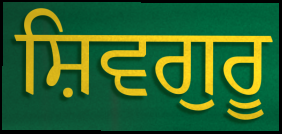
ਸ਼ਿਵਗੁਰੂ